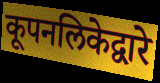
कूपनलिकेद्वारे